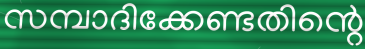
സമ്പാദിക്കേണ്ടതിന്റെ